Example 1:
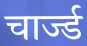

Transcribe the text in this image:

चार्ज्ड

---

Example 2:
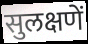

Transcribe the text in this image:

सुलक्षणें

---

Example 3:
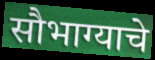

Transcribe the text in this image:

सौभाग्याचे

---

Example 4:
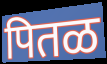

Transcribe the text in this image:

पितळ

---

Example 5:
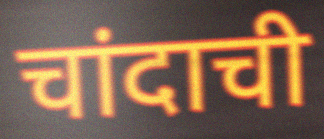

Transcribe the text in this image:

चांदाची